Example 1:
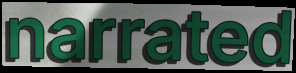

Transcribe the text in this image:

narrated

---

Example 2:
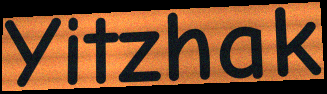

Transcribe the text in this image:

Yitzhak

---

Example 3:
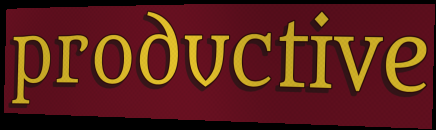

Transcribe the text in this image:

productive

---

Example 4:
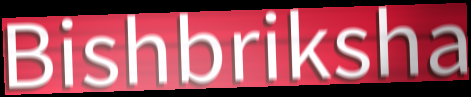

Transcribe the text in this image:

Bishbriksha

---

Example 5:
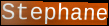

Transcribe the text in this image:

Stephane